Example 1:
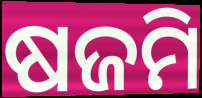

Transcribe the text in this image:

ଷଜମି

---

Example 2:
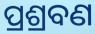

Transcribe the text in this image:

ପ୍ରଶ୍ରବଣ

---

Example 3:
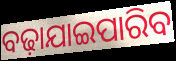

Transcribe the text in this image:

ବଢ଼ାଯାଇପାରିବ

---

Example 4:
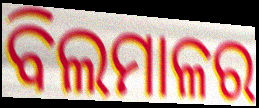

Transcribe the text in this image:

ବିଲମାଳର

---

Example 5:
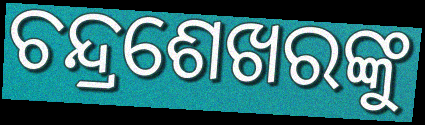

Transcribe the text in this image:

ଚନ୍ଦ୍ରଶେଖରଙ୍କୁ